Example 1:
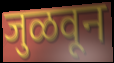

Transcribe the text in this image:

जुळवून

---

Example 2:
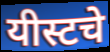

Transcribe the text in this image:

यीस्टचे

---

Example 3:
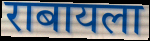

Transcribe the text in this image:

राबायला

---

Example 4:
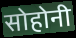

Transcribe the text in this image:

सोहोनी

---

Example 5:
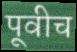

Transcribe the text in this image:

पूवीच